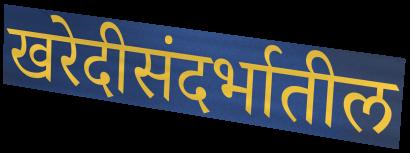
खरेदीसंदर्भातील